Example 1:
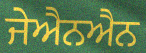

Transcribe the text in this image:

ਜੇਐਨਐਨ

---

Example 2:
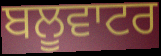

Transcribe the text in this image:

ਬਲੂਵਾਟਰ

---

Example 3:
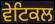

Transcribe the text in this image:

ਵੇਟਿਕਲ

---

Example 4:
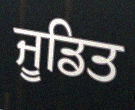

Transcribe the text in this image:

ਜੂਡਿਤ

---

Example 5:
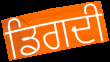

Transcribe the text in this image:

ਡਿਗਦੀ